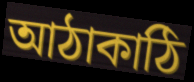
আঠাকাঠি